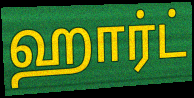
ஹார்ட்